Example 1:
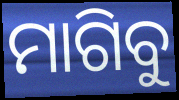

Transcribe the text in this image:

ମାଗିବୁ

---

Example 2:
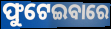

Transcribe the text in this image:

ଫୁଟେଇବାରେ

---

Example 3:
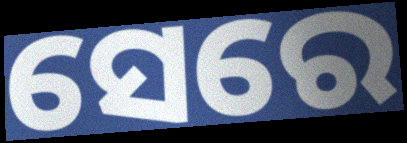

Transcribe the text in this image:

ସେରେ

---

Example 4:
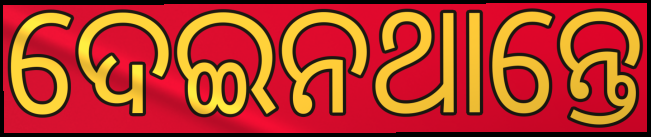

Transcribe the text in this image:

ଦେଇନଥାନ୍ତେ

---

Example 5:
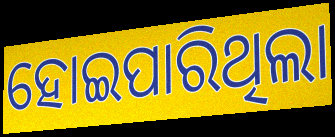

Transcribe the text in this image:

ହୋଇପାରିଥିଲା